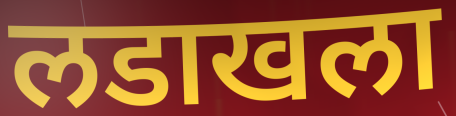
लडाखला